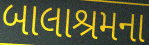
બાલાશ્રમના